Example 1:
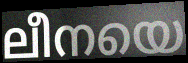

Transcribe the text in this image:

ലീനയെ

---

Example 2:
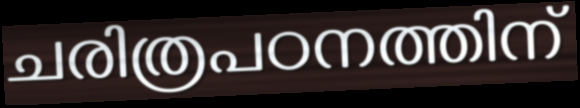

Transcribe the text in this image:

ചരിത്രപഠനത്തിന്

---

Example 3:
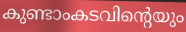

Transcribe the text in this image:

കുണ്ടാംകടവിന്റെയും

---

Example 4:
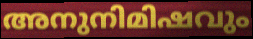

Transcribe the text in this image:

അനുനിമിഷവും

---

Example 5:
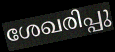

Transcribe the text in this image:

ശേഖരിപ്പു